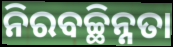
ନିରବଚ୍ଛିନ୍ନତା